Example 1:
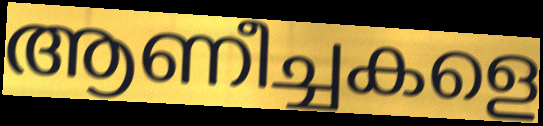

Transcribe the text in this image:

ആണീച്ചകളെ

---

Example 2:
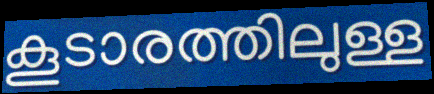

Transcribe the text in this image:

കൂടാരത്തിലുള്ള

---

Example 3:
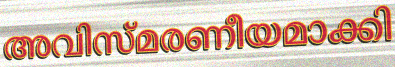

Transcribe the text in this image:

അവിസ്മരണീയമാക്കി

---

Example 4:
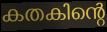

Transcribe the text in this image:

കതകിന്റെ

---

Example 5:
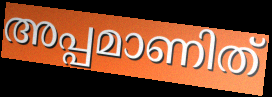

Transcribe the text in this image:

അപ്പമാണിത്